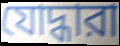
যোদ্ধারা